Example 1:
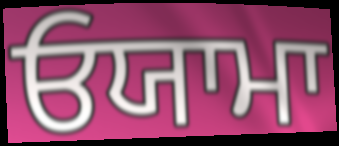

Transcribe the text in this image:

ਓਯਾਮਾ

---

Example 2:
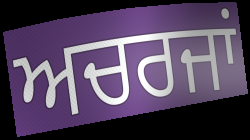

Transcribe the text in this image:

ਅਚਰਜਾਂ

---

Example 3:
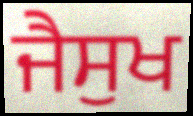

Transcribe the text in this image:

ਜੈਸੁਖ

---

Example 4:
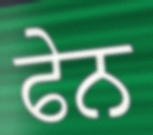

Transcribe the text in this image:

ਫੇਨ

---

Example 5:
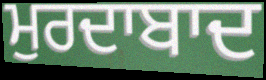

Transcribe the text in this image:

ਮੁਰਦਾਬਾਦ